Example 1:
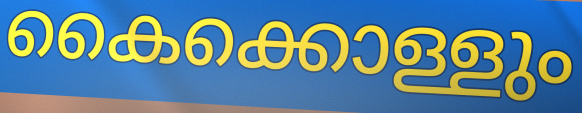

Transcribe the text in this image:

കൈക്കൊള്ളും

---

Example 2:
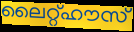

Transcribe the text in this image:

ലൈറ്റ്ഹൗസ്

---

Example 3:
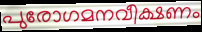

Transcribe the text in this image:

പുരോഗമനവീക്ഷണം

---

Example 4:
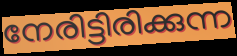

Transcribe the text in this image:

നേരിട്ടിരിക്കുന്ന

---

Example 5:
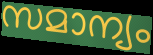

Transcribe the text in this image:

സമാന്യം